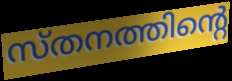
സ്തനത്തിന്റെ